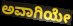
ಅವಾಗಿಯೇ